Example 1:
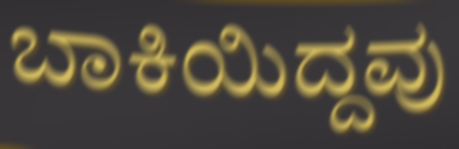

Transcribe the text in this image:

ಬಾಕಿಯಿದ್ದವು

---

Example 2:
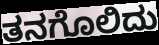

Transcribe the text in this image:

ತನಗೊಲಿದು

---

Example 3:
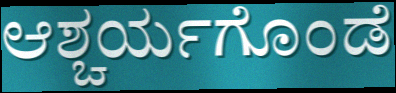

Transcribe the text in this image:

ಆಶ್ಚರ್ಯಗೊಂಡೆ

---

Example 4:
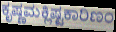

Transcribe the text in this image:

ಕೃಷ್ಣಮಕ್ಲಿಷ್ಟಕಾರಿಣಂ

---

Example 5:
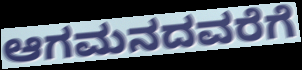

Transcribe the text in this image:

ಆಗಮನದವರೆಗೆ